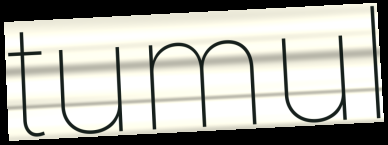
tumul